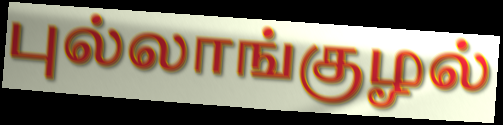
புல்லாங்குழல்